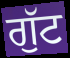
ਗੁੱਟ